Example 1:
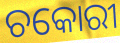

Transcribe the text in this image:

ଚକୋରୀ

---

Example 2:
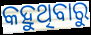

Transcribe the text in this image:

କହୁଥିବାରୁ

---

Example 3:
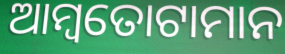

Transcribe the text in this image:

ଆମ୍ବତୋଟାମାନ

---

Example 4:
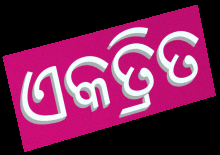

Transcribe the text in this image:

ଏକତ୍ରିତ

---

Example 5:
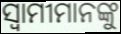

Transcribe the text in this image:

ସ୍ବାମୀମାନଙ୍କୁ